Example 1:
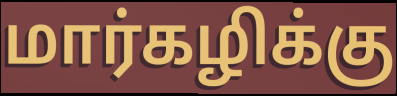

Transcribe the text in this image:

மார்கழிக்கு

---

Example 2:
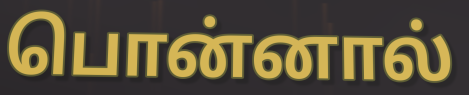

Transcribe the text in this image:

பொன்னால்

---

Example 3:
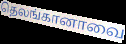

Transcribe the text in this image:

தெலங்கானாவை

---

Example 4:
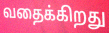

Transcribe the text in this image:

வதைக்கிறது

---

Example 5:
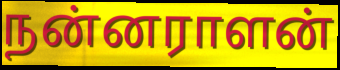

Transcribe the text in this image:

நன்னராளன்